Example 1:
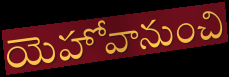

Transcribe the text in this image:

యెహోవానుంచి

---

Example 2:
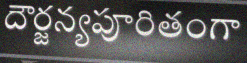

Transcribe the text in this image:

దౌర్జన్యపూరితంగా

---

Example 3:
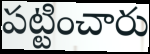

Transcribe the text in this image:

పట్టించారు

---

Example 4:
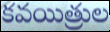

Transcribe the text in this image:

కవయిత్రుల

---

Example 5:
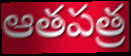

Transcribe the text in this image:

ఆతపత్ర